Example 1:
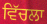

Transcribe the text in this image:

ਵਿੱਚਲਾ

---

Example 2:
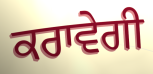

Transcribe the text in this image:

ਕਰਾਵੇਗੀ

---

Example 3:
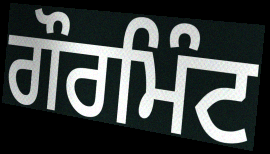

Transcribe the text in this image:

ਗੌਰਮਿੰਟ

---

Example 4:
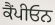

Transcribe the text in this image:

ਕੈਂਪੀਓਨ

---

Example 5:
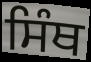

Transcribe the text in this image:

ਸਿੰਥ